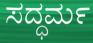
ಸದ್ಧರ್ಮ